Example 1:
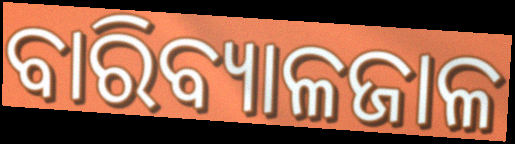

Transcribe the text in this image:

ବାରିବ୍ୟାଳଜାଳ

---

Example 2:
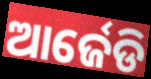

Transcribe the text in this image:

ଆର୍ଜେଡି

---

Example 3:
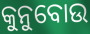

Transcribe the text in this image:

କୁନୁବୋଉ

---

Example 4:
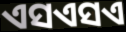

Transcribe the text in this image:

ଏସଏସଏ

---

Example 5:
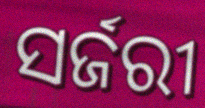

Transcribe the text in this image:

ସର୍ଜରୀ